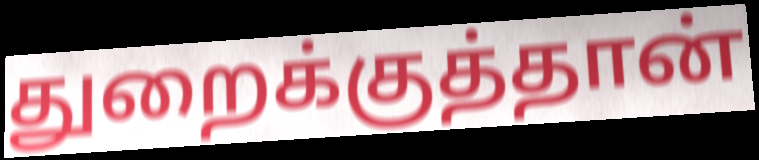
துறைக்குத்தான்